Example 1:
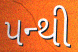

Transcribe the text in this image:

પન્થી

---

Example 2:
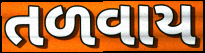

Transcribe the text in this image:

તળવાય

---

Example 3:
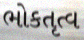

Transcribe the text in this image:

ભોકતૃત્વ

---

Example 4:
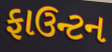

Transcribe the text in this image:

ફાઉન્ટન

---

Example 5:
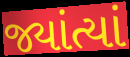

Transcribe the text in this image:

જ્યાંત્યાં